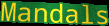
Mandals